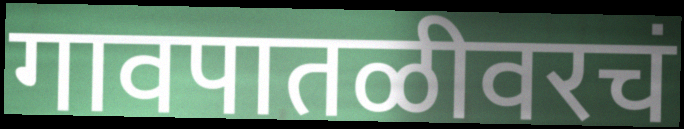
गावपातळीवरचं